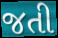
જતી